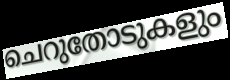
ചെറുതോടുകളും